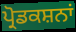
ਪ੍ਰੋਡਕਸ਼ਨਾਂ